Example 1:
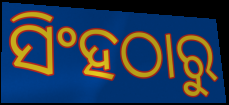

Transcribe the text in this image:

ସିଂହଠାରୁ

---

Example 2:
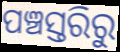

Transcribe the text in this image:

ପଞ୍ଚସ୍ତରିରୁ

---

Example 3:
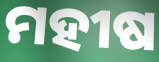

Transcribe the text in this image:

ମହୀଷ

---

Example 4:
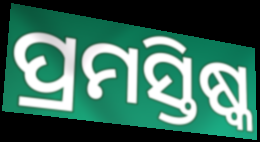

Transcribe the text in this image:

ପ୍ରମସ୍ତିଷ୍କ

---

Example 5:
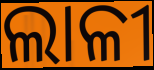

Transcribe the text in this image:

ଲାଳୀ